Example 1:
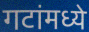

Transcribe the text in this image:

गटांमध्ये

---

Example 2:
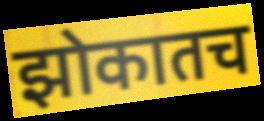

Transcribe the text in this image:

झोकातच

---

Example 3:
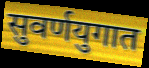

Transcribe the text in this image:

सुवर्णयुगात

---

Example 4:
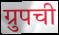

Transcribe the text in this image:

ग्रुपची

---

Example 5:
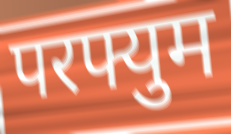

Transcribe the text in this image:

परफ्युम